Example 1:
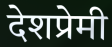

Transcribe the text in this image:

देशप्रेमी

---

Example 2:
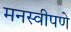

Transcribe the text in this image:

मनस्वीपणे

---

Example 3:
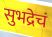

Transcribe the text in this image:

सुभद्रेचं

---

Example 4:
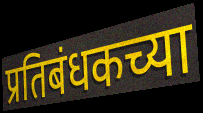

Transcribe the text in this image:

प्रतिबंधकच्या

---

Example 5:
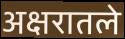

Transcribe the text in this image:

अक्षरातले